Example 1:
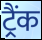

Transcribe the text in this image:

ट्रैंक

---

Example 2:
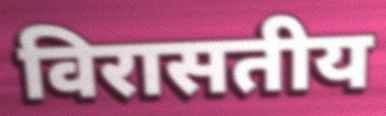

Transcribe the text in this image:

विरासतीय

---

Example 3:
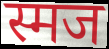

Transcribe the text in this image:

स्मज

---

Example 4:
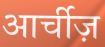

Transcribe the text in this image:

आर्चीज़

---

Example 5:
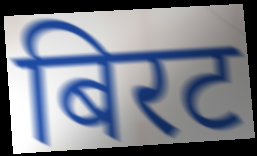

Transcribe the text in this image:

बिरट